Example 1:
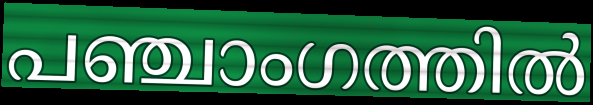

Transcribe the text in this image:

പഞ്ചാംഗത്തിൽ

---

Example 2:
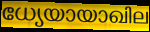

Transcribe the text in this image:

ധ്യേയായാഖില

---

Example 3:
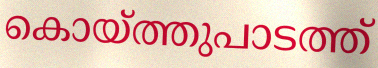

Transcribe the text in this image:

കൊയ്ത്തുപാടത്ത്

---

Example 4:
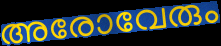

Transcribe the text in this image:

അരോവേരും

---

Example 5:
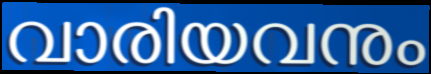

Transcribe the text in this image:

വാരിയവനും